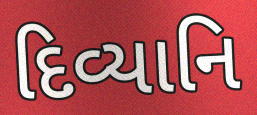
દિવ્યાનિ